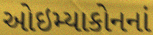
ઓઇમ્યાકોનનાં